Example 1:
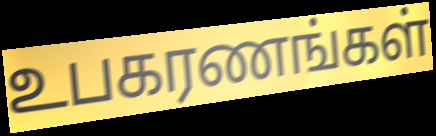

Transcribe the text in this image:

உபகரணங்கள்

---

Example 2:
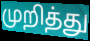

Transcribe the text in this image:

முறித்து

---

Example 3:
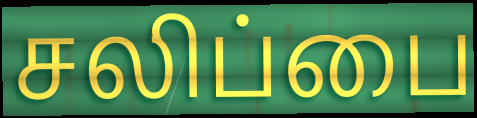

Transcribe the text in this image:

சலிப்பை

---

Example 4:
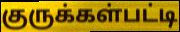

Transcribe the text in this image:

குருக்கள்பட்டி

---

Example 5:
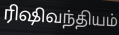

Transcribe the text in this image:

ரிஷிவந்தியம்